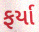
ફર્યા